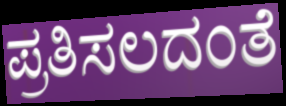
ಪ್ರತಿಸಲದಂತೆ